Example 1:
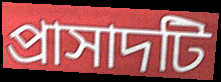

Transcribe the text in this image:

প্রাসাদটি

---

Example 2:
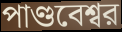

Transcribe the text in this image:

পাণ্ডবেশ্বর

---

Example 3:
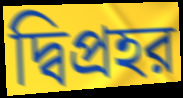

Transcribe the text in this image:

দ্বিপ্রহর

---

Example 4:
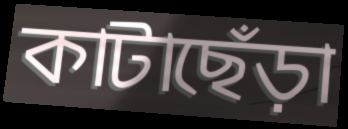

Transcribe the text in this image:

কাটাছেঁড়া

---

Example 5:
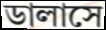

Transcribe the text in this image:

ডালাসে